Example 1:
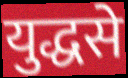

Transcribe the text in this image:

युद्धसे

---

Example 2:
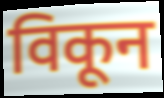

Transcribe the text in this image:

विकून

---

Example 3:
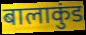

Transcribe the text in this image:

बालाकुंड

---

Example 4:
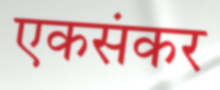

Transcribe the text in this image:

एकसंकर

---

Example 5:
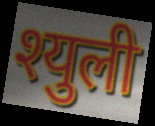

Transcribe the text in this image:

श्युली